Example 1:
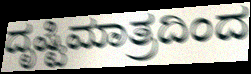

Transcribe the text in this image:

ದೃಷ್ಟಿಮಾತ್ರದಿಂದ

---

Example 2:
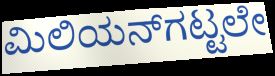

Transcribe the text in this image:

ಮಿಲಿಯನ್‌ಗಟ್ಟಲೇ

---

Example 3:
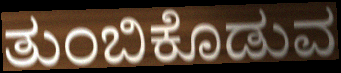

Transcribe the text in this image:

ತುಂಬಿಕೊಡುವ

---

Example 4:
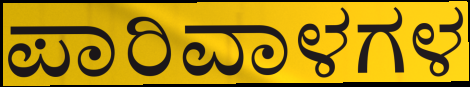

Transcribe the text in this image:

ಪಾರಿವಾಳಗಳ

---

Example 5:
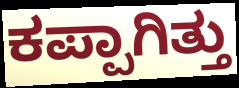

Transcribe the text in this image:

ಕಪ್ಪಾಗಿತ್ತು